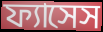
ফ্যাসেস